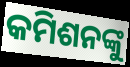
କମିଶନଙ୍କୁ